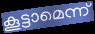
കൂട്ടാമെന്ന്